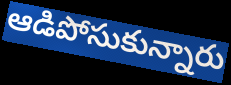
ఆడిపోసుకున్నారు